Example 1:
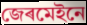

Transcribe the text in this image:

জেৰমেইনে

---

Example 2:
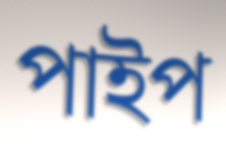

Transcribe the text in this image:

পাইপ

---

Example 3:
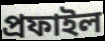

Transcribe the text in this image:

প্ৰফাইল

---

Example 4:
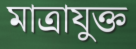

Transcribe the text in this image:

মাত্ৰাযুক্ত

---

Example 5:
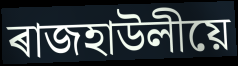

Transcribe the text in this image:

ৰাজহাউলীয়ে